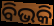
ବିଭକି